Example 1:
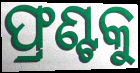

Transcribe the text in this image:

ଫ୍ରଣ୍ଟକୁ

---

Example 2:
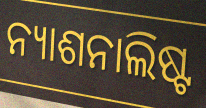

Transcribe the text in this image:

ନ୍ୟାଶନାଲିଷ୍ଟ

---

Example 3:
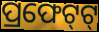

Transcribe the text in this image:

ପ୍ରଫେଟ୍‌ଟ୍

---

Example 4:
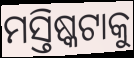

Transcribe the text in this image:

ମସ୍ତିଷ୍କଟାକୁ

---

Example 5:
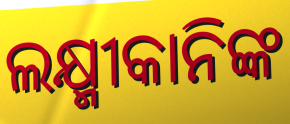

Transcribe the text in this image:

ଲକ୍ଷ୍ମୀକାନିଙ୍କ